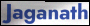
Jaganath